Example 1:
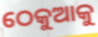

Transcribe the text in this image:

ଠେକୁଆକୁ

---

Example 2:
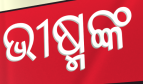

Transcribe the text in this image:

ଭୀଷ୍ମଙ୍କ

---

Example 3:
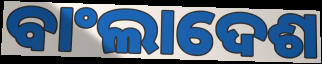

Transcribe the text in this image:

ବାଂଲାଦେଶ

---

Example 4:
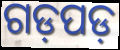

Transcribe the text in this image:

ଗଡ଼ପଡ଼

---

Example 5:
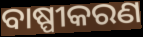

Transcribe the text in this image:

ବାଷ୍ପୀକରଣ